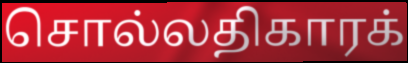
சொல்லதிகாரக்